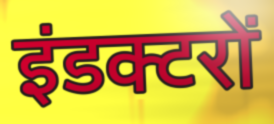
इंडक्टरों